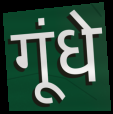
गूंधे